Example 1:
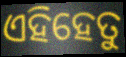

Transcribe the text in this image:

ଏହିହେତୁ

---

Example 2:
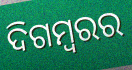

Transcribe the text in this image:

ଦିଗମ୍ୱରର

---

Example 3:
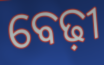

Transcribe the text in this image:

ବେଢ଼ୀ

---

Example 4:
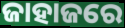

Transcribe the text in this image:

ଜାହାଜରେ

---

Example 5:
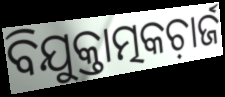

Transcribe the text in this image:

ବିଯୁକ୍ତାତ୍ମକଚ଼ାର୍ଜ